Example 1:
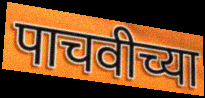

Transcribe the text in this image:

पाचवीच्या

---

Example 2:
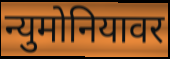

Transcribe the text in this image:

न्युमोनियावर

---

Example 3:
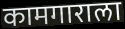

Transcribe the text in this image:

कामगाराला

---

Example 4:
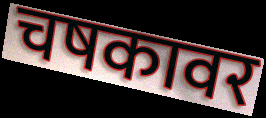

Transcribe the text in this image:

चषकावर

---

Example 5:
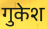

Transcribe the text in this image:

गुकेश